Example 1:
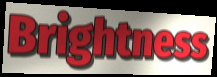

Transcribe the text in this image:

Brightness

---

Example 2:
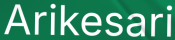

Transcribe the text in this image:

Arikesari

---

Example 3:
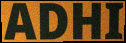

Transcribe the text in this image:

ADHI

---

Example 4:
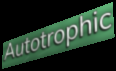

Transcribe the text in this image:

Autotrophic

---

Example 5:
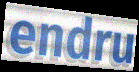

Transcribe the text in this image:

endru